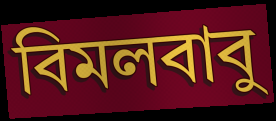
বিমলবাবু